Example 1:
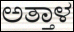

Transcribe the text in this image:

ಅತ್ತಾಳ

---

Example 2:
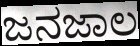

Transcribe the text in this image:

ಜನಜಾಲ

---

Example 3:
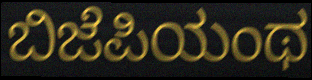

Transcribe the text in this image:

ಬಿಜೆಪಿಯಂಥ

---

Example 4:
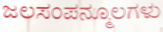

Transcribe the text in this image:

ಜಲಸಂಪನ್ಮೂಲಗಳು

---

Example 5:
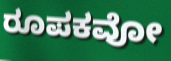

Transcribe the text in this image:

ರೂಪಕವೋ